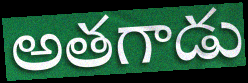
అతగాడు